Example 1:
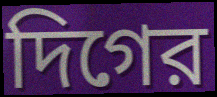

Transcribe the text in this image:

দিগের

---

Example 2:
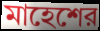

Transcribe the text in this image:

মাহেশের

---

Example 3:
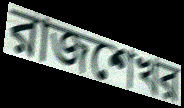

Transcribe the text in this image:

রাজশেখর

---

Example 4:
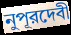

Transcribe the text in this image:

নুপূরদেবী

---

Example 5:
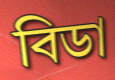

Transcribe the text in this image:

বিডা